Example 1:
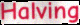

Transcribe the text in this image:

Halving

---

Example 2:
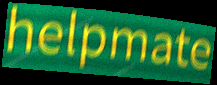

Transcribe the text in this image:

helpmate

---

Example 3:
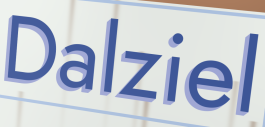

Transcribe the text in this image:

Dalziel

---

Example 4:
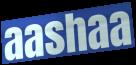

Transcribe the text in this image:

aashaa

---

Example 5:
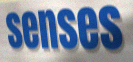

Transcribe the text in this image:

senses